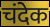
चंदेक